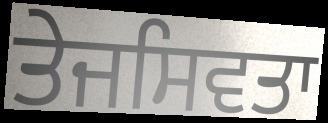
ਤੇਜਸਿਵਤਾ